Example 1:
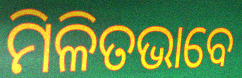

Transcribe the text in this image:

ମିଳିତଭାବେ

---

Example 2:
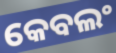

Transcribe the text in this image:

କେବଲଂ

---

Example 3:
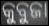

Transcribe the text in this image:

କୁବୁଜା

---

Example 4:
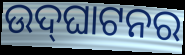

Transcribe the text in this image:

ଉଦ୍‌ଘାଟନର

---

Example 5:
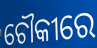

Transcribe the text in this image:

ଚୌକୀରେ